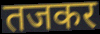
तजकर